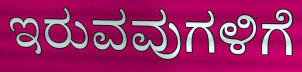
ಇರುವವುಗಳಿಗೆ